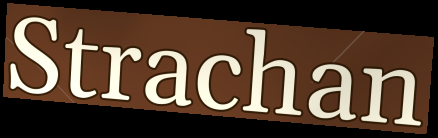
Strachan